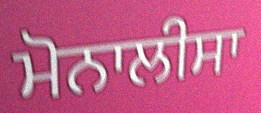
ਮੋਨਾਲੀਸਾ